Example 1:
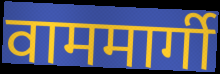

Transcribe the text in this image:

वाममार्गी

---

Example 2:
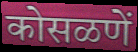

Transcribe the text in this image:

कोसळणें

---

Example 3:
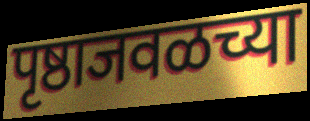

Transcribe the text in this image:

पृष्ठाजवळच्या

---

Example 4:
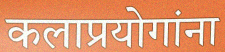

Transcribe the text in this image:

कलाप्रयोगांना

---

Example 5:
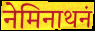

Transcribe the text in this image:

नेमिनाथनं